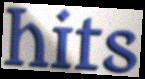
hits